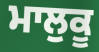
ਮਾਲੁਕੂ